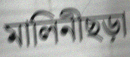
মালিনীছড়া